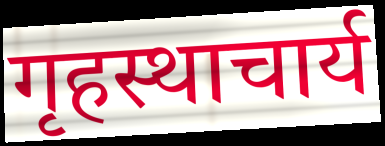
गृहस्थाचार्य